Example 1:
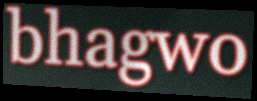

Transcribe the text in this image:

bhagwo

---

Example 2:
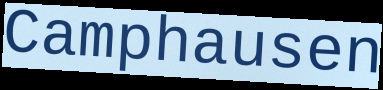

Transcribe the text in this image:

Camphausen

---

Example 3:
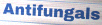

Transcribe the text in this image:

Antifungals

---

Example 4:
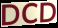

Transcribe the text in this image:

DCD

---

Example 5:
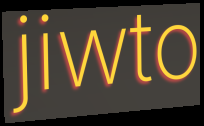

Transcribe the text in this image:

jiwto